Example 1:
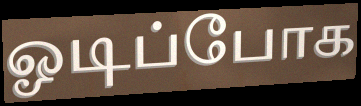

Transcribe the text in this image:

ஓடிப்போக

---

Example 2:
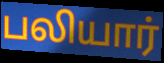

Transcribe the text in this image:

பலியார்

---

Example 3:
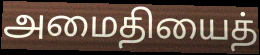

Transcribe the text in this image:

அமைதியைத்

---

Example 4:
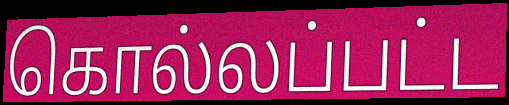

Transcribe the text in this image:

கொல்லப்பட்ட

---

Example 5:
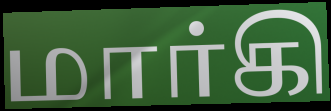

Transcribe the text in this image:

மார்கி